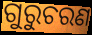
ଗୁରୁଚରଣ